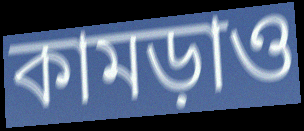
কামড়াও